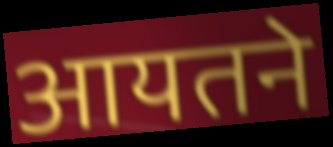
आयतने